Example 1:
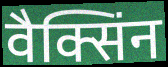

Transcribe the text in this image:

वैक्सिंन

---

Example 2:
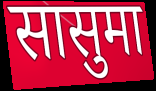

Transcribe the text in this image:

सासुमा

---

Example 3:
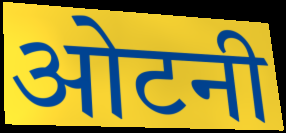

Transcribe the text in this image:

ओटनी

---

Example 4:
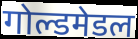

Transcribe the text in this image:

गोल्डमेडल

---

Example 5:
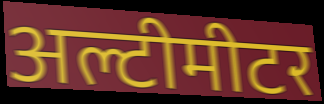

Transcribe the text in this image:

अल्टीमीटर